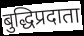
बुद्धिप्रदाता